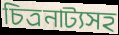
চিত্রনাট্যসহ